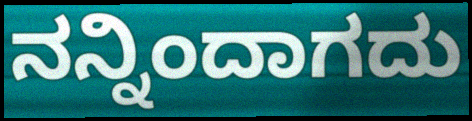
ನನ್ನಿಂದಾಗದು